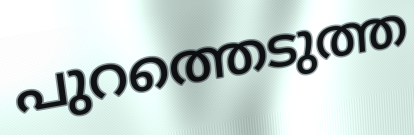
പുറത്തെടുത്ത